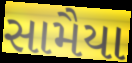
સામૈયા